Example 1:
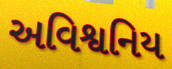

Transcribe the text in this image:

અવિશ્વનિય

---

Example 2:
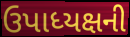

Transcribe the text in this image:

ઉપાધ્યક્ષની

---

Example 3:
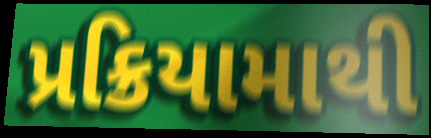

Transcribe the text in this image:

પ્રક્રિયામાથી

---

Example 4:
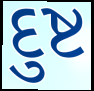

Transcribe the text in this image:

દુષ્ટ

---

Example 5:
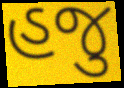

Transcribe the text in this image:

હજુ